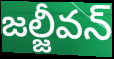
జల్జీవన్